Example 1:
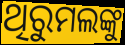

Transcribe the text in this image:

ଥିରୁମଲଙ୍କୁ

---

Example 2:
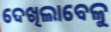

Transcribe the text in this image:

ଦେଖିଲାବେଳୁ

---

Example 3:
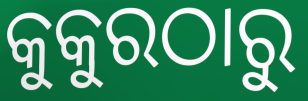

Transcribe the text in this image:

କୁକୁରଠାରୁ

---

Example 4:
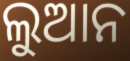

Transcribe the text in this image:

ଲୁଆନ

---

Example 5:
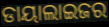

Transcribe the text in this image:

ଡାୟାଲାଇଜର